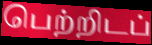
பெற்றிடப்